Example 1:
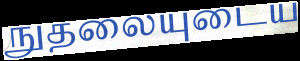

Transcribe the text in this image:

நுதலையுடைய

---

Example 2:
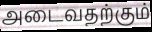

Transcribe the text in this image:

அடைவதற்கும்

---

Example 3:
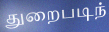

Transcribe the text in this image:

துறைபடிந்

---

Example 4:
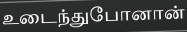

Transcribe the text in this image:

உடைந்துபோனான்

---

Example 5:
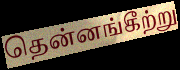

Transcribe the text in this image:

தென்னங்கீற்று